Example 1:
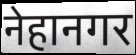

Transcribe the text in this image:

नेहानगर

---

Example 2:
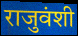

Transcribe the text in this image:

राजुवंशी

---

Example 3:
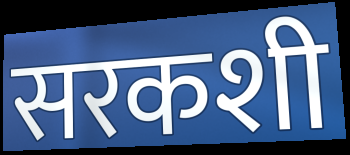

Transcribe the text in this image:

सरकशी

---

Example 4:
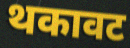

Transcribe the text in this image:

थकावट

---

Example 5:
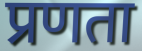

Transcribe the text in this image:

प्रणता